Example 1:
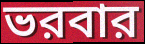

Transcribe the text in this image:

ভরবার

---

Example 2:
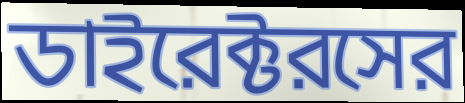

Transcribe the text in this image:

ডাইরেক্টরসের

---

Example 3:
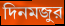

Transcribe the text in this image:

দিনমজুর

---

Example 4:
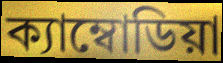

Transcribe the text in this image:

ক্যাম্বোডিয়া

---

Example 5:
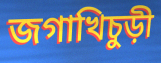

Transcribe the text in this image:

জগাখিচুড়ী